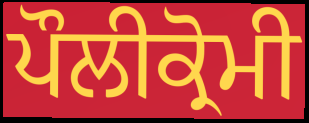
ਪੌਲੀਕ੍ਰੋਮੀ